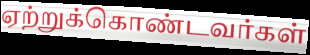
ஏற்றுக்கொண்டவர்கள்